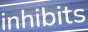
inhibits